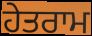
ਹੇਤਰਾਮ